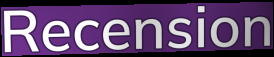
Recension